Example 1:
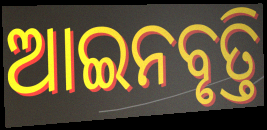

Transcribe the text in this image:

ଆଇନବୃତ୍ତି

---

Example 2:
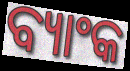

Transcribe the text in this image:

ବ୍ୟାଂକ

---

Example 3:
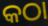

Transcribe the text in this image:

କଠା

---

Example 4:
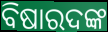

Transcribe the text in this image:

ବିଷାରଦଙ୍କ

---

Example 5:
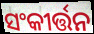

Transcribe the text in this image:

ସଂକୀର୍ତ୍ତନ